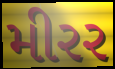
મીરર